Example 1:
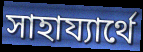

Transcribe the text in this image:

সাহায্যার্থে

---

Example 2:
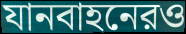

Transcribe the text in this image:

যানবাহনেরও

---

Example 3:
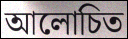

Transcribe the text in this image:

আলোচিত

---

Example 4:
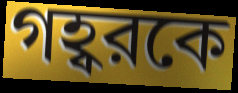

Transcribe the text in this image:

গহ্বরকে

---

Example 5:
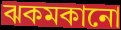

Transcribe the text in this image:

ঝকমকানো